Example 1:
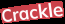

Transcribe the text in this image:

Crackle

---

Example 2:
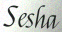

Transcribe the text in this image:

Sesha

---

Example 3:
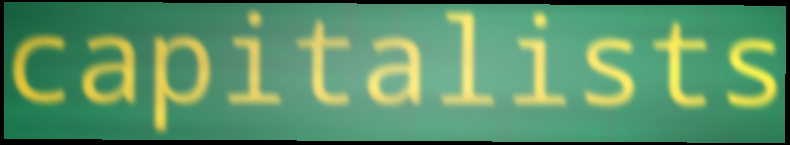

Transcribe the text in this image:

capitalists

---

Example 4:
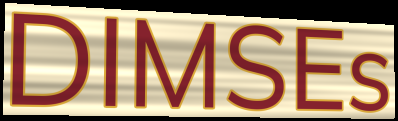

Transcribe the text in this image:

DIMSEs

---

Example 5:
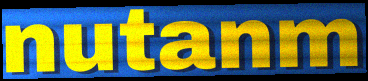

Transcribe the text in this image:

nutanm